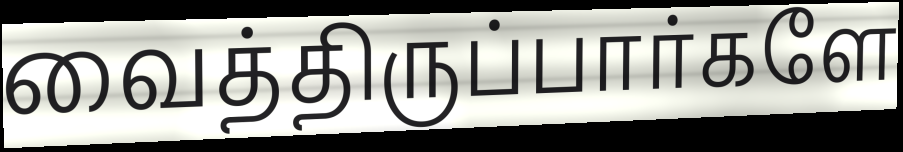
வைத்திருப்பார்களே